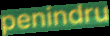
penindru